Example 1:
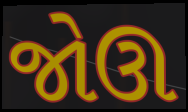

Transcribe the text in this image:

જોઊ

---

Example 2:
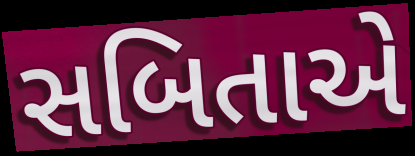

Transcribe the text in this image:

સબિતાએ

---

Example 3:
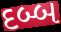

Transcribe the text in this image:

દબ્બ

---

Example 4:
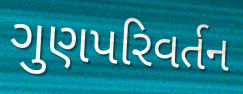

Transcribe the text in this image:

ગુણપરિવર્તન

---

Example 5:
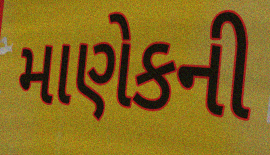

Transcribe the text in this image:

માણેકની